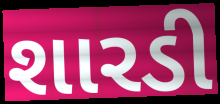
શારડી